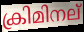
ക്രിമിനല്